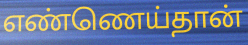
எண்ணெய்தான்